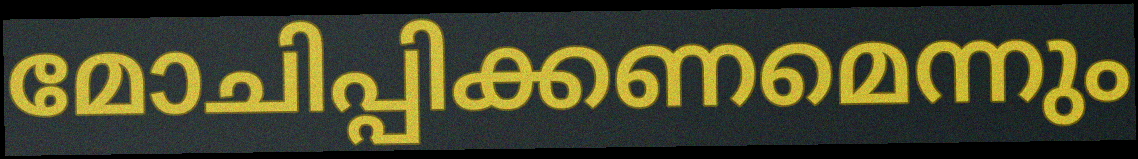
മോചിപ്പിക്കണമെന്നും